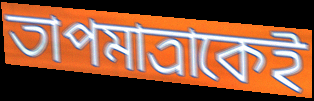
তাপমাত্রাকেই